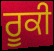
ਰੂਕੀ